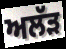
ਅਲੱੜ